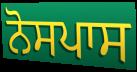
ਨੋਸਪਾਸ